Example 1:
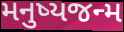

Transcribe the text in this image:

મનુષ્યજન્મ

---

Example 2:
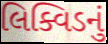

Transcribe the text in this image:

લિક્વિડનું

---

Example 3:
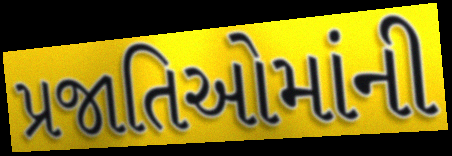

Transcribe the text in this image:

પ્રજાતિઓમાંની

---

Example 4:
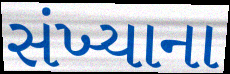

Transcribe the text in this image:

સંખ્યાના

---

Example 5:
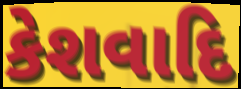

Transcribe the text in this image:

કેશવાદિ